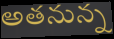
అతనున్న